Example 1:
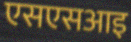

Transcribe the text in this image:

एसएसआइ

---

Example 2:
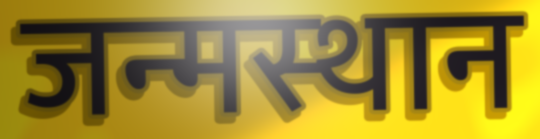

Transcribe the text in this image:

जन्मस्थान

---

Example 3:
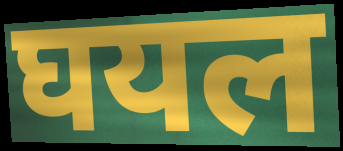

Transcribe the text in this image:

घयल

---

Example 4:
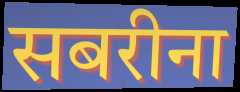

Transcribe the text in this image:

सबरीना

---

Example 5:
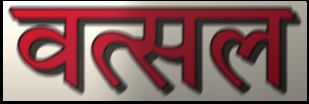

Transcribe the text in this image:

वत्सल